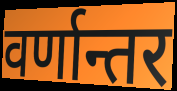
वर्णान्तर